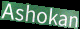
Ashokan